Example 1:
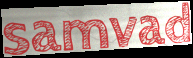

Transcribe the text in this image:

samvad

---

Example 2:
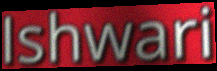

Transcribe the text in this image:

Ishwari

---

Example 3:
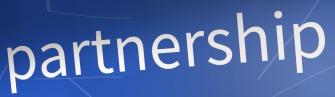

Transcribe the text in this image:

partnership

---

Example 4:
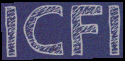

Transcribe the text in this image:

ICFI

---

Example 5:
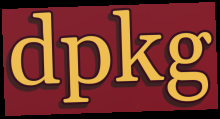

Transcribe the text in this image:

dpkg